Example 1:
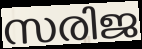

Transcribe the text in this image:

സരിജ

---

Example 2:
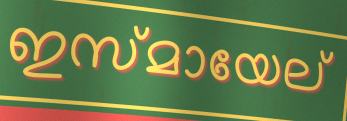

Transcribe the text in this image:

ഇസ്മായേല്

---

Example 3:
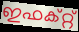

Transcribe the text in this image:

ഇഫക്റ്റ്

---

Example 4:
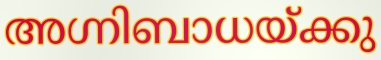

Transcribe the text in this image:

അഗ്നിബാധയ്ക്കു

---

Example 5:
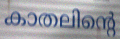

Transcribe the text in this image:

കാതലിന്റെ